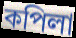
কপিলা